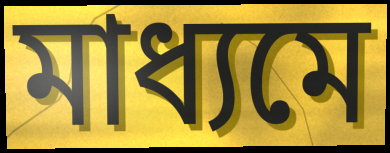
মাধ্যমে